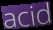
acid